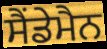
ਸੈਂਡੇਮੈਨ